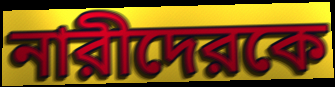
নারীদেরকে